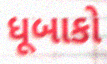
ધૂબાકો